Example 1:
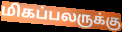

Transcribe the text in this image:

மிகப்பலருக்கு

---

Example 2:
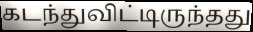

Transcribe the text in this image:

கடந்துவிட்டிருந்தது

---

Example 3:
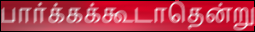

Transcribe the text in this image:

பார்க்கக்கூடாதென்று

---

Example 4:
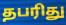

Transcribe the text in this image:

தபரிது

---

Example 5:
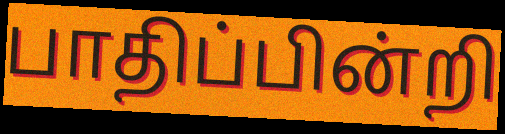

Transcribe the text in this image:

பாதிப்பின்றி